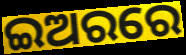
ଇଅରରେ